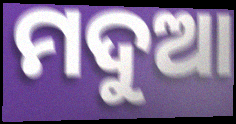
ମଦୁଆ